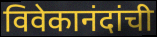
विवेकानंदांची